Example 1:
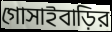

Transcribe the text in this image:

গোসাইবাড়ির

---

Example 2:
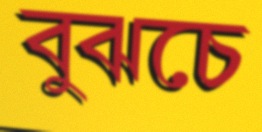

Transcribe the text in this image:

বুঝচে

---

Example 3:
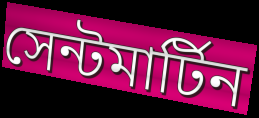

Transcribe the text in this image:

সেন্টমার্টিন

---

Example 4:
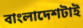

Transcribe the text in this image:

বাংলাদেশটাই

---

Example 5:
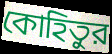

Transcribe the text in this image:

কোহিতুর